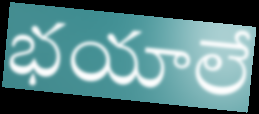
భయాలే